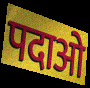
पदाओ